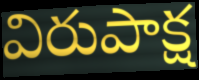
విరుపాక్ష